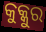
କୁକ୍କୁର